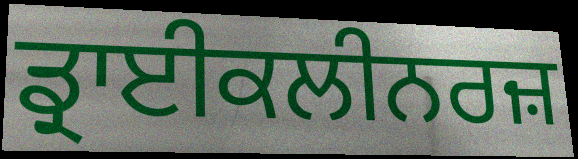
ਡ੍ਰਾਈਕਲੀਨਰਜ਼